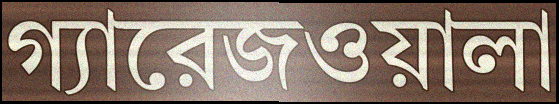
গ্যারেজওয়ালা